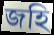
জহি